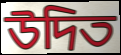
উদিত